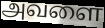
அவளை